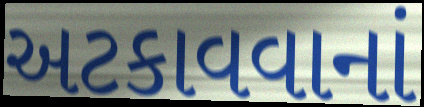
અટકાવવાનાં